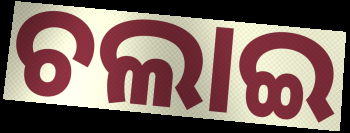
ଚଲାଇ